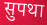
सुपथा